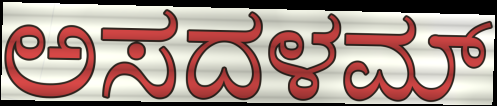
ಅಸದಳಮ್